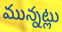
మున్నట్లు